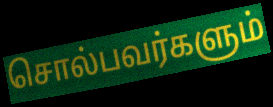
சொல்பவர்களும்